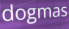
dogmas